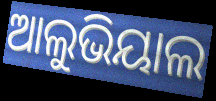
ଆଲୁଭିୟାଲ